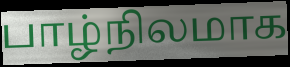
பாழ்நிலமாக